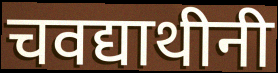
चवद्याथीनी